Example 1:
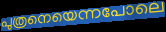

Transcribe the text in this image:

പുത്രനെയെന്നപോലെ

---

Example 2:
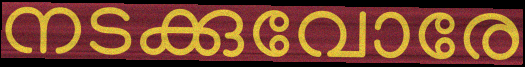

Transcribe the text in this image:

നടക്കുവോരേ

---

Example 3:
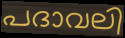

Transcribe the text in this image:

പദാവലി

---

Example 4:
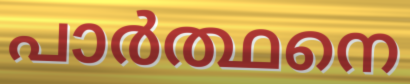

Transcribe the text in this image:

പാർത്ഥനെ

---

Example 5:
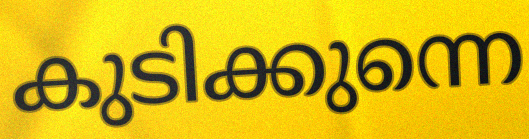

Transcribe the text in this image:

കുടിക്കുന്നെ